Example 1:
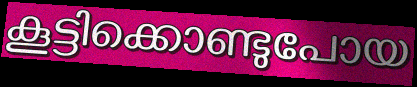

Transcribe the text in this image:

കൂട്ടിക്കൊണ്ടുപോയ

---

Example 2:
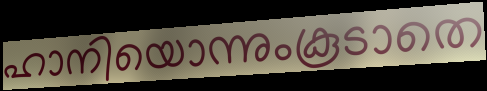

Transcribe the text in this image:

ഹാനിയൊന്നുംകൂടാതെ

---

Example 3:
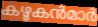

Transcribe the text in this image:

കഴുകൻമാർ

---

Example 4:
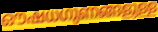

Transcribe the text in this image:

ഔഷധഗുണങ്ങളുള്ള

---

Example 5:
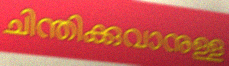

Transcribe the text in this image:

ചിന്തിക്കുവാനുള്ള